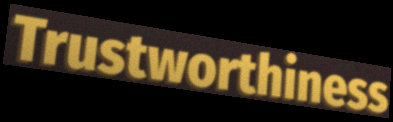
Trustworthiness